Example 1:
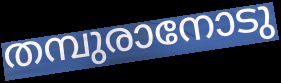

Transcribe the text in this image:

തമ്പുരാനോടു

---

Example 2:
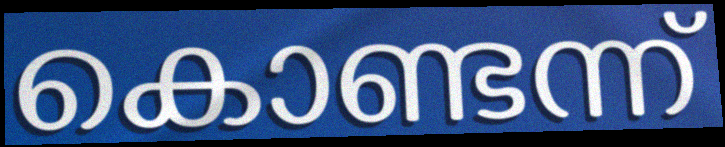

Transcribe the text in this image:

കൊണ്ടന്ന്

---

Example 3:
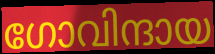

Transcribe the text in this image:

ഗോവിന്ദായ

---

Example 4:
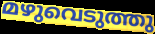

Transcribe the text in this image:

മഴുവെടുത്തു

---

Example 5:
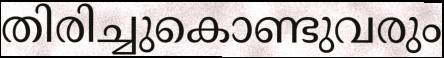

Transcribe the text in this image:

തിരിച്ചുകൊണ്ടുവരും